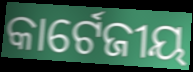
କାର୍ଟେଜୀୟ